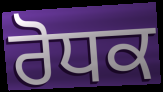
ਰੋਧਕ